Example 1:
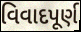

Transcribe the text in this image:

વિવાદપૂર્ણ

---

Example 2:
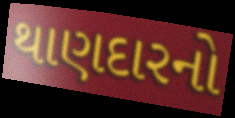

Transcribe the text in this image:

થાણદારનો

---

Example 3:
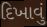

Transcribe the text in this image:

દિખાવું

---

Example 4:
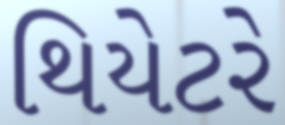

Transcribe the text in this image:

થિયેટરે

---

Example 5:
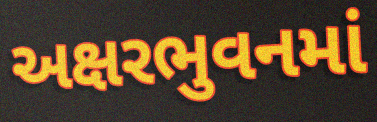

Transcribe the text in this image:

અક્ષરભુવનમાં